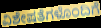
ವಿಶೇಷತೆಗಳೊಂದಿಗೆ